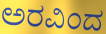
ಅರವಿಂದ